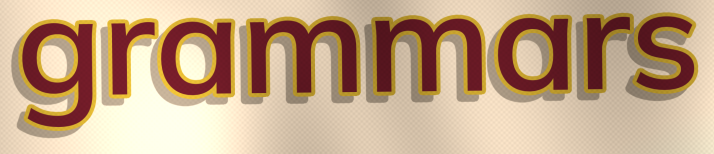
grammars